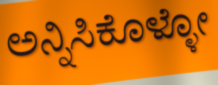
ಅನ್ನಿಸಿಕೊಳ್ಳೋ